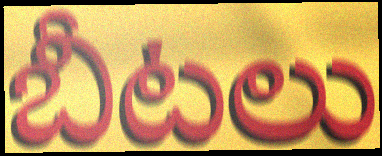
బీటలు